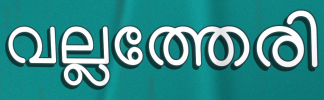
വല്ലത്തേരി